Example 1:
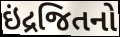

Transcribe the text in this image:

ઇંદ્રજિતનો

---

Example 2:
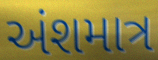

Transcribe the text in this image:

અંશમાત્ર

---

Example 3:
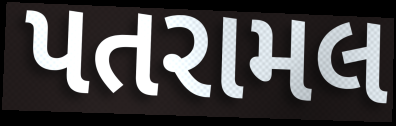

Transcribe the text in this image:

પતરામલ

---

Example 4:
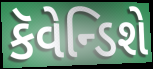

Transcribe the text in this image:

કૅવેન્ડિશે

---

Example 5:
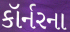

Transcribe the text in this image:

કૉર્નરના